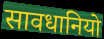
सावधानियो